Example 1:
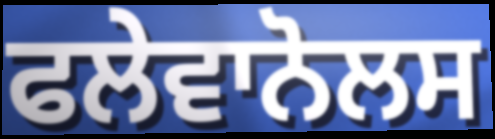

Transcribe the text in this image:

ਫਲੇਵਾਨੋਲਸ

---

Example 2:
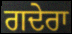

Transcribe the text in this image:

ਗਦੇਰਾ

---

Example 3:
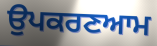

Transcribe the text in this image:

ਉਪਕਰਣਆਮ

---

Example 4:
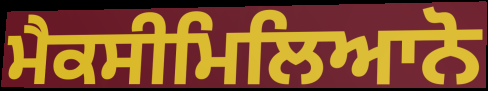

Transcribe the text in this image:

ਮੈਕਸੀਮਿਲਿਆਨੋ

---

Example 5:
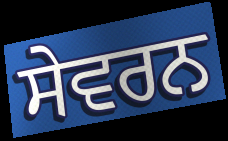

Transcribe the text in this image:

ਸੇਵਰਨ